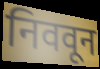
निववून